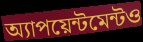
অ্যাপয়েন্টমেন্টও